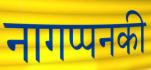
नागप्पनकी